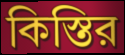
কিস্তির